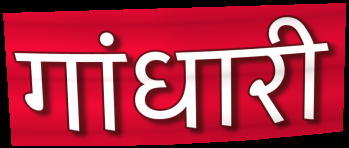
गांधारी